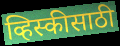
व्हिस्कीसाठी